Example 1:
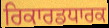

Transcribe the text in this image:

ਰਿਕਾਰਡਧਾਰਕ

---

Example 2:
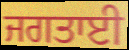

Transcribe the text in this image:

ਜਗਤਾਈ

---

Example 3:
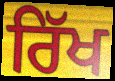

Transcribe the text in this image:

ਰਿੱਖ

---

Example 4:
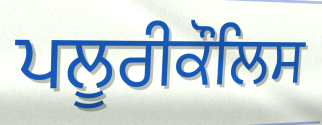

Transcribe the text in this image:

ਪਲੂਰੀਕੌਲਿਸ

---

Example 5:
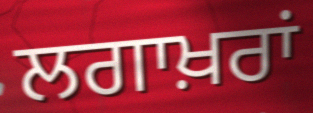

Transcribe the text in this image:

ਲਗਾਖ਼ਰਾਂ